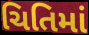
ચિતિમાં